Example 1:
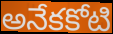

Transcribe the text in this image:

అనేకకోటి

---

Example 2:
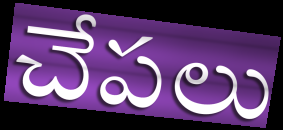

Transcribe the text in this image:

చేపలు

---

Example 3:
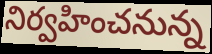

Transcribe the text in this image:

నిర్వహించనున్న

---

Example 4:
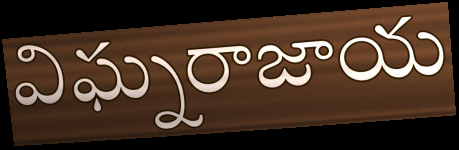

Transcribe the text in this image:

విఘ్నరాజాయ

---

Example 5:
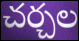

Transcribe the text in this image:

చర్చల